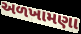
અળખામણા